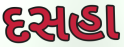
દસહા